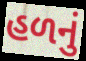
હળનું